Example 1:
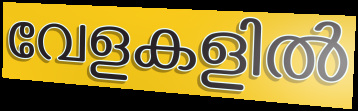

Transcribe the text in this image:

വേളകളിൽ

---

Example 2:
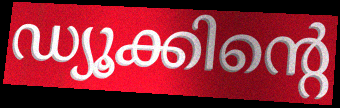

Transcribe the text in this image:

ഡ്യൂക്കിന്റെ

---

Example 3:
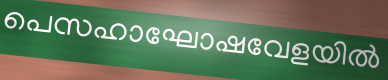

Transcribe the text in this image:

പെസഹാഘോഷവേളയിൽ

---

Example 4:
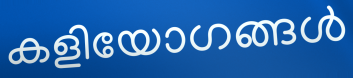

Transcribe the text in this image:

കളിയോഗങ്ങൾ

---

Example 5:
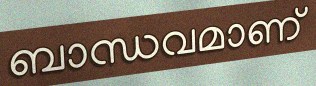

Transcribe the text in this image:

ബാന്ധവമാണ്